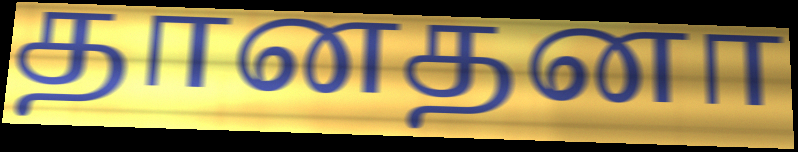
தானதனா